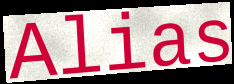
Alias